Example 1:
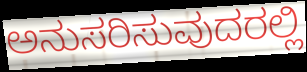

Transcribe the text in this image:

ಅನುಸರಿಸುವುದರಲ್ಲಿ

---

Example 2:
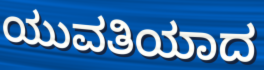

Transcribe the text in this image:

ಯುವತಿಯಾದ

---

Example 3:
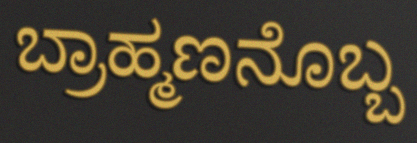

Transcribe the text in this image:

ಬ್ರಾಹ್ಮಣನೊಬ್ಬ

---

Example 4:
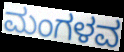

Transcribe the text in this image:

ಮಂಗಳವ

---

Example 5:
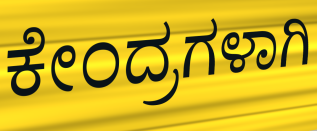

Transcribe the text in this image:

ಕೇಂದ್ರಗಳಾಗಿ